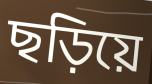
ছড়িয়ে